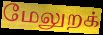
மேலுறக்